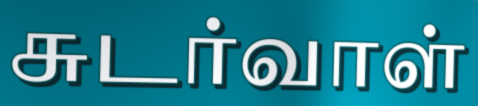
சுடர்வாள்